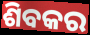
ଶିବକର